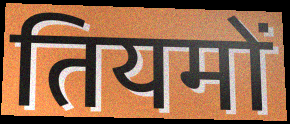
तियमों